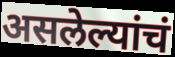
असलेल्यांचं